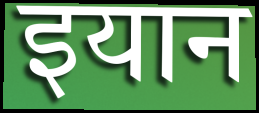
इयान